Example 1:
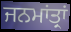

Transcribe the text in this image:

ਜਨਮਾਂਤ੍ਰਾਂ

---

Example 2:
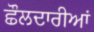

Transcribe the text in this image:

ਛੌਲਦਾਰੀਆਂ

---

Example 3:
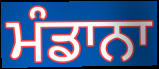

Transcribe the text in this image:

ਮੰਡਾਨਾ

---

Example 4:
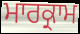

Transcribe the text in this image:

ਮਾਰਕ੍ਰਾਮ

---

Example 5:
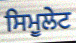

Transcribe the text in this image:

ਸਿਮੂਲੇਟ